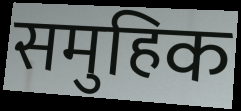
समुहिक